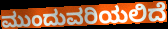
ಮುಂದುವರಿಯಲಿದೆ